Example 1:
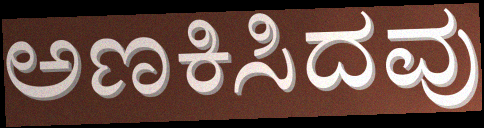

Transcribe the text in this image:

ಅಣಕಿಸಿದವು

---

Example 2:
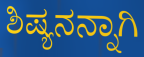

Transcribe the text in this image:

ಶಿಷ್ಯನನ್ನಾಗಿ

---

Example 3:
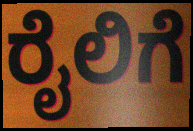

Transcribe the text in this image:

ರೈಲಿಗೆ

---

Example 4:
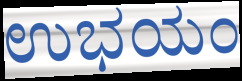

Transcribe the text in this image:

ಉಭಯಂ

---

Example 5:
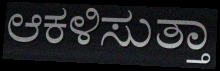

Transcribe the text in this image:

ಆಕಳಿಸುತ್ತಾ